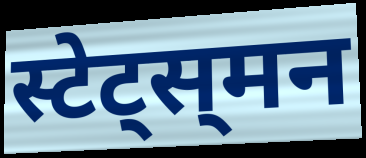
स्टेट्स्‌मन